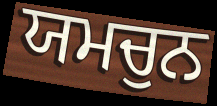
ਯਮਚੁਨ